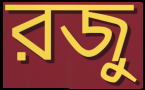
রজু